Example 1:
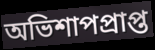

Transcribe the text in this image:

অভিশাপপ্রাপ্ত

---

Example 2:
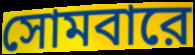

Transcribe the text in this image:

সোমবারে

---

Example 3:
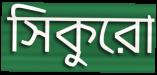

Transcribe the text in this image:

সিকুরো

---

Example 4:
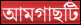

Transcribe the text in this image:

আমগাছটি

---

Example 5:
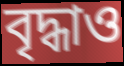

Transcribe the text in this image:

বৃদ্ধাও